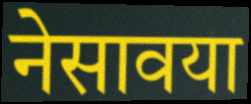
नेसावया